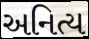
અનિત્ય